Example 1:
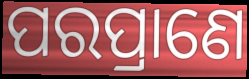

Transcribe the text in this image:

ପରପ୍ରାଣେ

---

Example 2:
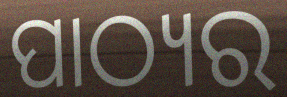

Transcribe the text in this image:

ପାଠ୍ୟର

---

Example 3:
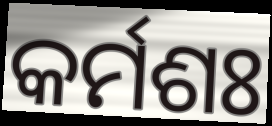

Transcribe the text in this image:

କର୍ମଶଃ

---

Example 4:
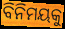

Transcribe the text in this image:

ବିନିମୟକୁ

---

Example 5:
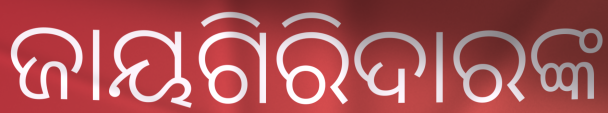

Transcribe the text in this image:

ଜାୟଗିରିଦାରଙ୍କ